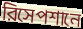
রিসেপশানে